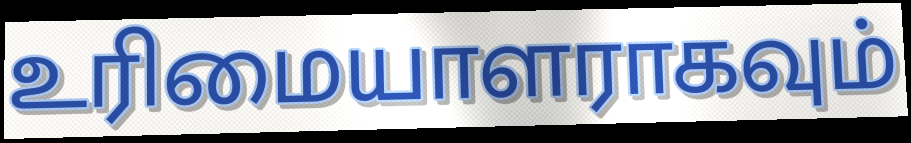
உரிமையாளராகவும்